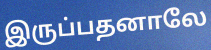
இருப்பதனாலே